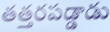
తత్తరపడ్డాడు